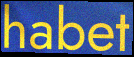
habet